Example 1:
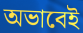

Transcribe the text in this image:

অভাবেই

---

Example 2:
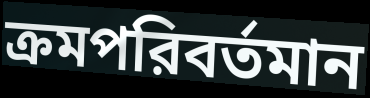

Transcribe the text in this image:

ক্রমপরিবর্তমান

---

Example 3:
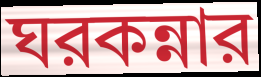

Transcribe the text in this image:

ঘরকন্নার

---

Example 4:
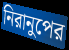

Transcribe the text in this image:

নিরানুপের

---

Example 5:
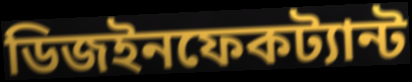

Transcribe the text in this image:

ডিজইনফেকট্যান্ট